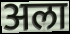
अला